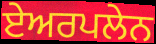
ਏਅਰਪਲੇਨ